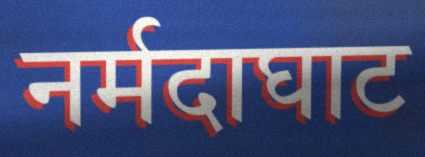
नर्मदाघाट